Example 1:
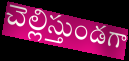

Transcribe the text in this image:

చెల్లిస్తుండగా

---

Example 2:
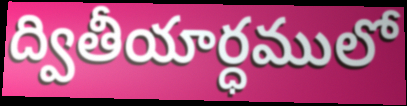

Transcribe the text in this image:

ద్వితీయార్ధములో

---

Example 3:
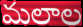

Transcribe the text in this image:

మలాల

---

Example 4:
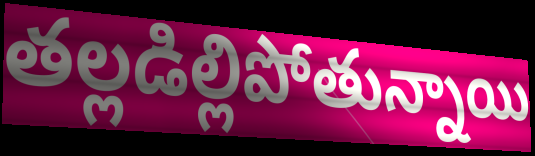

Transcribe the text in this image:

తల్లడిల్లిపోతున్నాయి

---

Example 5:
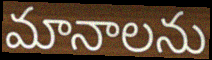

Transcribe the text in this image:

మానాలను